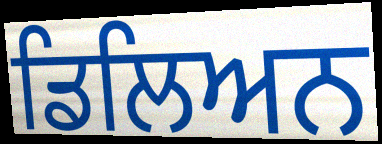
ਡਿਲਿਅਨ